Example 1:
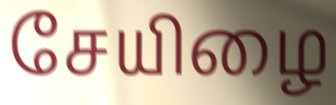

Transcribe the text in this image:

சேயிழை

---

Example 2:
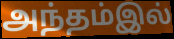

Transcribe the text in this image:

அந்தம்இல்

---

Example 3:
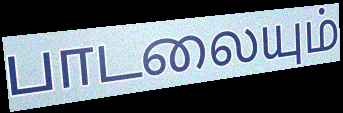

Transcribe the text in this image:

பாடலையும்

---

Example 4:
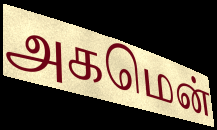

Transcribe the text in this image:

அகமென்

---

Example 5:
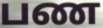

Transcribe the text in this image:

பண